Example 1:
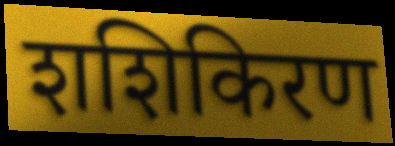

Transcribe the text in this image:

शशिकिरण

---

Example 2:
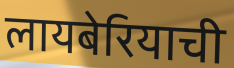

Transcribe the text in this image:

लायबेरियाची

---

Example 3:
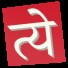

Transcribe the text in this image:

त्ये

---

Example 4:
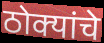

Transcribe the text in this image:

ठोक्यांचे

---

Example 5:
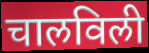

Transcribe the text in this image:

चालविली